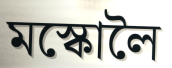
মস্কোলৈ